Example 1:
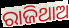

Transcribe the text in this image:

ରାଜିଥାଅ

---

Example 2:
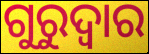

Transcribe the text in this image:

ଗୁରୁଦ୍ଵାର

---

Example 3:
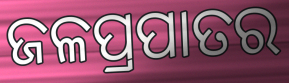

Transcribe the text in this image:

ଜଳପ୍ରପାତର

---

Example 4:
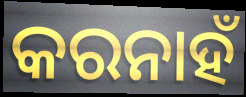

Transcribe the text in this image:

କରନାହଁ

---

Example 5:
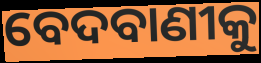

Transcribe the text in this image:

ବେଦବାଣୀକୁ